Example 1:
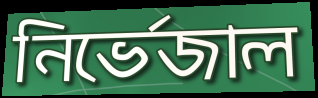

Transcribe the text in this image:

নিৰ্ভেজাল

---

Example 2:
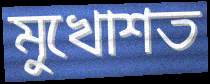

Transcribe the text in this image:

মুখোশত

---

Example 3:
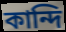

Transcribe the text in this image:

কান্দি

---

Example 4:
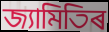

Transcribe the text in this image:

জ্যামিতিৰ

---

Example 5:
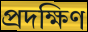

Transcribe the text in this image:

প্ৰদক্ষিণ